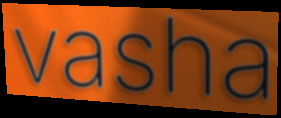
vasha